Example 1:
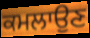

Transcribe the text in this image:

ਕਮਲਾਉਣ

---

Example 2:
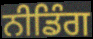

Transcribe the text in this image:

ਨੀਡਿੰਗ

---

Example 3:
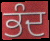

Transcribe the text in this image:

ਭੰਦ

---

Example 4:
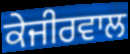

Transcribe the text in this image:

ਕੇਜੀਰਵਾਲ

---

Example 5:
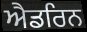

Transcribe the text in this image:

ਐਡਰਿਨ